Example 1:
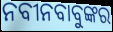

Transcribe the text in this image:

ନବୀନବାବୁଙ୍କର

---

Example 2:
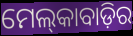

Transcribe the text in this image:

ମେଲ୍‌କାବାଡ଼ିର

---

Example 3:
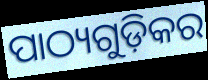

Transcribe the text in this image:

ପାଠ୍ୟଗୁଡ଼ିକର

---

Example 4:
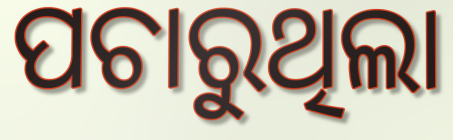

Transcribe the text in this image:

ପଚାରୁଥିଲା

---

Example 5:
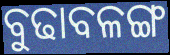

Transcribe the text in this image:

ବୁଢାବଳଙ୍ଗ